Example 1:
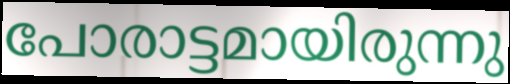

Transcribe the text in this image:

പോരാട്ടമായിരുന്നു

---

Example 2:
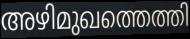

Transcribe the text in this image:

അഴിമുഖത്തെത്തി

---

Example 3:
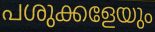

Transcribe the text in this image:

പശുക്കളേയും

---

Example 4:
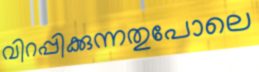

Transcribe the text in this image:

വിറപ്പിക്കുന്നതുപോലെ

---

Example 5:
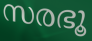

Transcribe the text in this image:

സരഭൂ